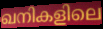
ഖനികളിലെ